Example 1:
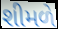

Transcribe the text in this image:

શીમળે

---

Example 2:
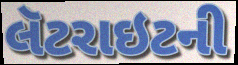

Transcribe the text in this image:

લૅટરાઇટની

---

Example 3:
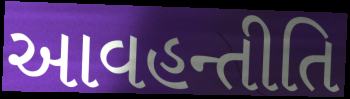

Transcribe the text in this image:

આવહન્તીતિ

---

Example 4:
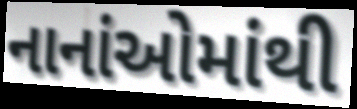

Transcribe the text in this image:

નાનાંઓમાંથી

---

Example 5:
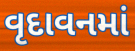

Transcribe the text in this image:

વૃદાવનમાં